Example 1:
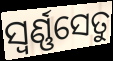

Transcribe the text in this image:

ସ୍ଵର୍ଣ୍ଣସେତୁ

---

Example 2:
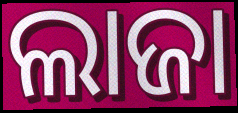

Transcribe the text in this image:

ଲାଜା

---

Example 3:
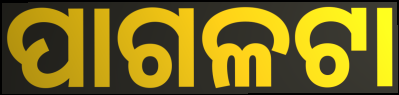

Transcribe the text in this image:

ପାଗଳଟା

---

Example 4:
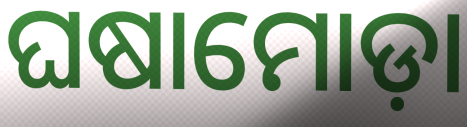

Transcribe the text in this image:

ଘଷାମୋଡ଼ା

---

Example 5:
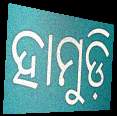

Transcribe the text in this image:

ହାମୁଡ଼ି